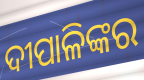
ଦୀପାଳିଙ୍କର